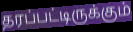
தரப்பட்டிருக்கும்